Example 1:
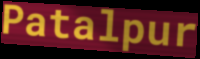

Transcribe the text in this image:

Patalpur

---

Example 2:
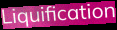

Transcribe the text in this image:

Liquification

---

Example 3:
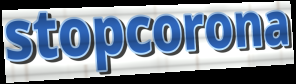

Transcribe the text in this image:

stopcorona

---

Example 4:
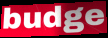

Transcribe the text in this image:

budge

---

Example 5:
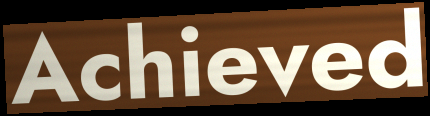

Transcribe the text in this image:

Achieved